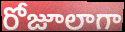
రోజూలాగా